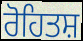
ਰੋਹਿਤਸ਼